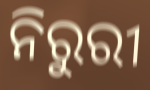
ନିରୁରୀ